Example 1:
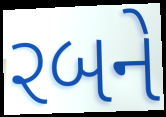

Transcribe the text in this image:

રબને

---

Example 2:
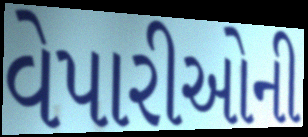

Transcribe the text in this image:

વેપારીઓની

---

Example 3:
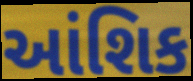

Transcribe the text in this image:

આંશિક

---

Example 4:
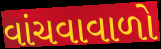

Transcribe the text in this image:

વાંચવાવાળો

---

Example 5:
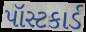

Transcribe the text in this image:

પૉસ્ટકાર્ડ